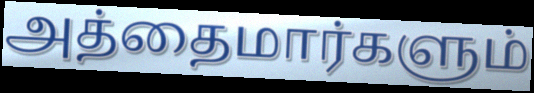
அத்தைமார்களும்